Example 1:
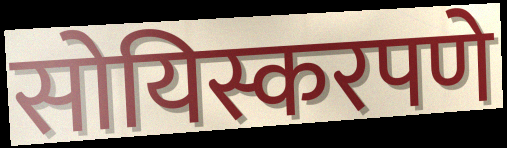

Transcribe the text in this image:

सोयिस्करपणे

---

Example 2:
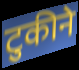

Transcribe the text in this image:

टुकीने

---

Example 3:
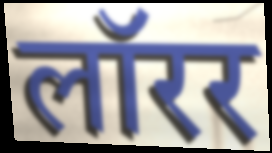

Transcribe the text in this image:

लॉरर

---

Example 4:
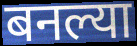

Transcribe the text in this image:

बनल्या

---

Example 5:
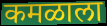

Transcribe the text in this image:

कमळाला